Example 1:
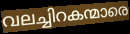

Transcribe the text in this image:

വലച്ചിറകന്മാരെ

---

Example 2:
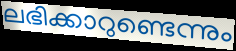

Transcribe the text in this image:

ലഭിക്കാറുണ്ടെന്നും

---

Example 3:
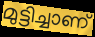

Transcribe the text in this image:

മുട്ടിച്ചാണ്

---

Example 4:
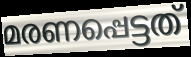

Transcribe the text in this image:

മരണപ്പെട്ടത്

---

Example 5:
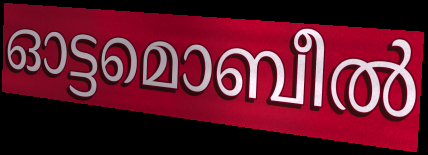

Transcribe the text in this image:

ഓട്ടമൊബീൽ